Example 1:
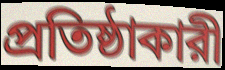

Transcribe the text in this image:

প্রতিষ্ঠাকারী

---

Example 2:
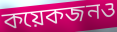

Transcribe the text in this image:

কয়েকজনও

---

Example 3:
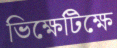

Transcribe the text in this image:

ভিক্ষেটিক্ষে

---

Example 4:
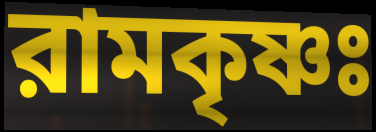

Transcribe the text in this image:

রামকৃষ্ণঃ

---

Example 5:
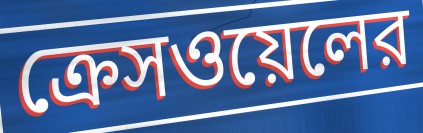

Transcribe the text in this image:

ক্রেসওয়েলের